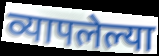
व्यापलेल्या